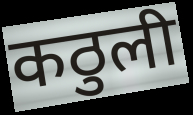
कठुली